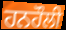
ਹਨਹੌਲੀ